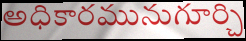
అధికారమునుగూర్చి